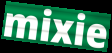
mixie